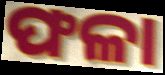
ଫଳା